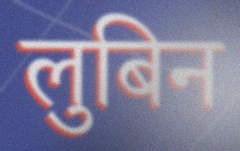
लुबिन